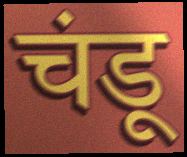
चंडू